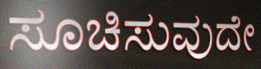
ಸೂಚಿಸುವುದೇ